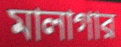
মালাগার